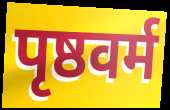
पृष्ठवर्म